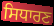
ਸਿਧਾਰਣ